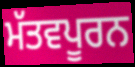
ਮੱਤਵਪੂਰਨ